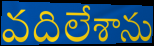
వదిలేశాను